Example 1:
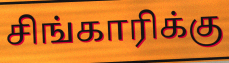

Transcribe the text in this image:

சிங்காரிக்கு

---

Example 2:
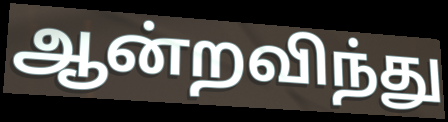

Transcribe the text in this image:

ஆன்றவிந்து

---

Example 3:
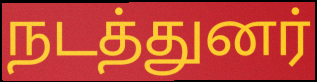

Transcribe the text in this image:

நடத்துனர்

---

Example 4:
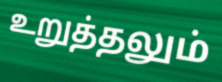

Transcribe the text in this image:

உறுத்தலும்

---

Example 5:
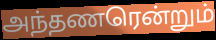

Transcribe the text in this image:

அந்தணரென்றும்